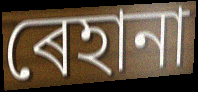
ৰেহানা